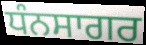
ਧੰਨਸਾਗਰ